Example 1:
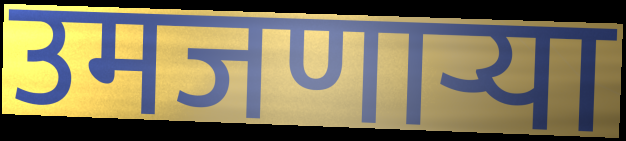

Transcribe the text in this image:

उमजणाऱ्या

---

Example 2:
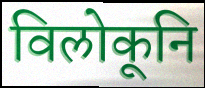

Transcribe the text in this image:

विलोकूनि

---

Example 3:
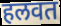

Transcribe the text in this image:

हलवत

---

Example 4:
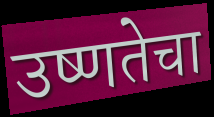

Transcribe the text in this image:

उष्णतेचा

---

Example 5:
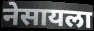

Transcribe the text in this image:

नेसायला